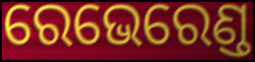
ରେଭେରେଣ୍ଡ